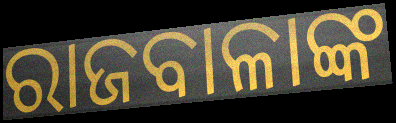
ରାଜବାଳାଙ୍କ